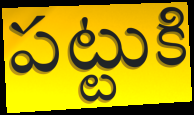
పట్టుకి